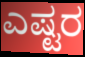
ಎಷ್ಟರ